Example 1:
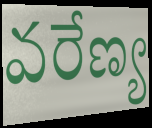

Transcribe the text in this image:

వరేణ్య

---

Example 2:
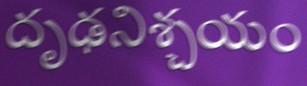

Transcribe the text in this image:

దృఢనిశ్చయం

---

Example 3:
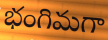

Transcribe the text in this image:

భంగిమగా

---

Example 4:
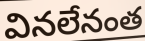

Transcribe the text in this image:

వినలేనంత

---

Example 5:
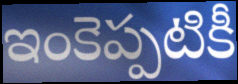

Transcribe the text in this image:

ఇంకెప్పటికీ